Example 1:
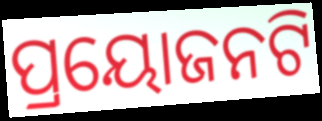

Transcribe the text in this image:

ପ୍ରୟୋଜନଟି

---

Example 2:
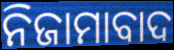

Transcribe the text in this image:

ନିଜାମାବାଦ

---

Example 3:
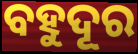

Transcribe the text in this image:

ବହୁଦୂର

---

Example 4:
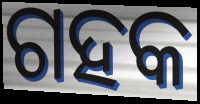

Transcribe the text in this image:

ଗହକ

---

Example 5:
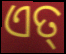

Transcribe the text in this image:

ଏତ୍